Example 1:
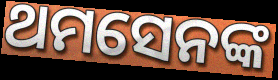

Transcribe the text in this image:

ଥମସେନଙ୍କ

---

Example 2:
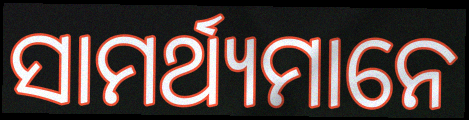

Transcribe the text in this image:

ସାମର୍ଥ୍ୟମାନେ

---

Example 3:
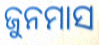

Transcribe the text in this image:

ଜୁନମାସ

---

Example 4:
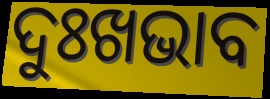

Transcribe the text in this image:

ଦୁଃଖଭାବ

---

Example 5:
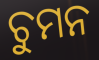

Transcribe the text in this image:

ଚୁମନ